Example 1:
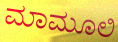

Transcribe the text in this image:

ಮಾಮೂಲಿ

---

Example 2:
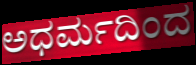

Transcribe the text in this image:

ಅಧರ್ಮದಿಂದ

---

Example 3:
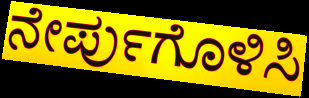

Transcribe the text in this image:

ನೇರ್ಪುಗೊಳಿಸಿ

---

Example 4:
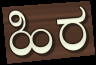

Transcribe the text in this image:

ಹಿರ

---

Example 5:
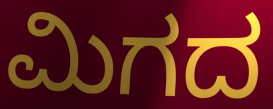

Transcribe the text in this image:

ಮಿಗದ